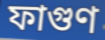
ফাগুণ